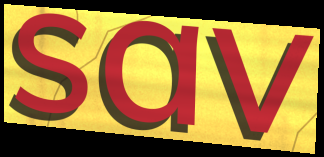
sav